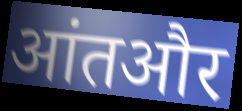
आंतऔर